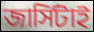
জার্সিটাই